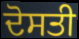
ਦੋਸਤੀ